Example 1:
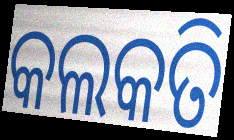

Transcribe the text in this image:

କଲକତି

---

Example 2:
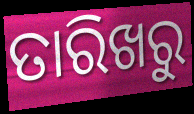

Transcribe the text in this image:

ତାରିଖରୁ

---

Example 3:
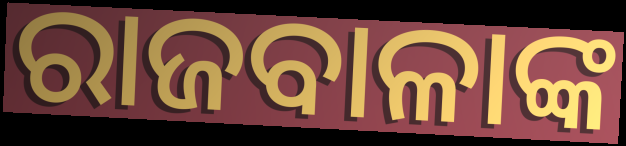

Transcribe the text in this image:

ରାଜବାଳାଙ୍କ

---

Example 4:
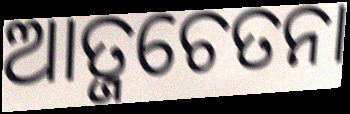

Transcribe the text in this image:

ଆତ୍ଜଚେତନା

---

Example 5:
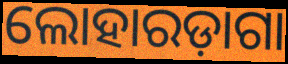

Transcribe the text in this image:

ଲୋହାରଡ଼ାଗା